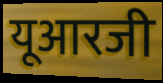
यूआरजी